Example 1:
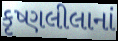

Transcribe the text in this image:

કૃષ્ણલીલાનાં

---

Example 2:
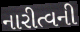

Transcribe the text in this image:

નારીત્વની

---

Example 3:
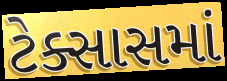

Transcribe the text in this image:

ટેક્સાસમાં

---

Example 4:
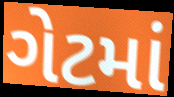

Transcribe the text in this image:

ગેટમાં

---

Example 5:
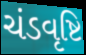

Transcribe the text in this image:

ચંડવૃષ્ટિ